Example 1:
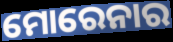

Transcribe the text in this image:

ମୋରେନାର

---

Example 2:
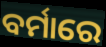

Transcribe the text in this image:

ବର୍ମାରେ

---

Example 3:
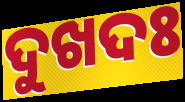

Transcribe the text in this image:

ଦୁଖଦଃ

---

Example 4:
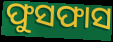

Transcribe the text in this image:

ଫୁସଫାସ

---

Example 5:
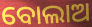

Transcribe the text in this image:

ବୋଲାଅ